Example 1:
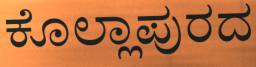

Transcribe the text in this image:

ಕೊಲ್ಲಾಪುರದ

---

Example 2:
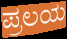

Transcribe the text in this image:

ಪ್ರಲಯ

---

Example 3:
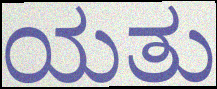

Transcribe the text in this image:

ಯತು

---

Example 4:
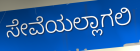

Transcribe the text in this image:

ಸೇವೆಯಲ್ಲಾಗಲಿ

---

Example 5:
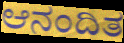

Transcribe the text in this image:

ಆನಂದಿತ